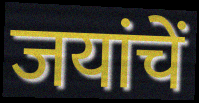
जयांचें